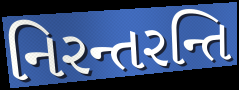
નિરન્તરન્તિ